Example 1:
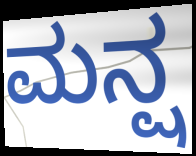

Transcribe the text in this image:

ಮನ್ಷ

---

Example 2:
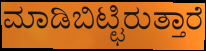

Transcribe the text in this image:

ಮಾಡಿಬಿಟ್ಟಿರುತ್ತಾರೆ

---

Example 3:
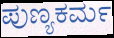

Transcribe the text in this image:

ಪುಣ್ಯಕರ್ಮ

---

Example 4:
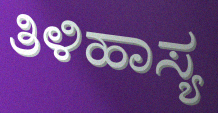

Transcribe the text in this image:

ತಿಳಿಹಾಸ್ಯ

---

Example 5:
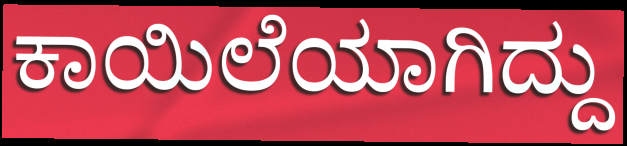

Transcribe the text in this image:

ಕಾಯಿಲೆಯಾಗಿದ್ದು